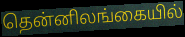
தென்னிலங்கையில்